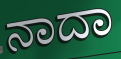
ನಾದಾ